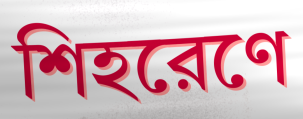
শিহরেণে